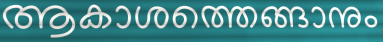
ആകാശത്തെങ്ങാനും